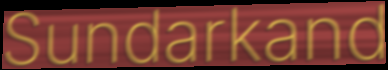
Sundarkand